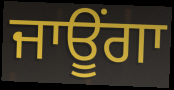
ਜਾਊਂਗਾ